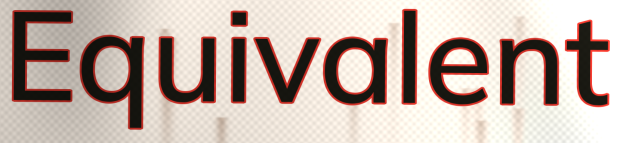
Equivalent